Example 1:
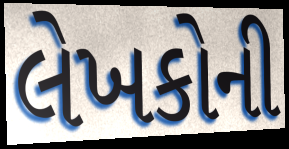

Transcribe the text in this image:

લેખકોની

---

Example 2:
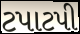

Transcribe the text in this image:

ટપાટપી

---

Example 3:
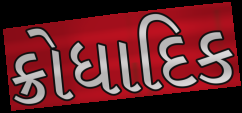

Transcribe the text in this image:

ક્રોધાદિક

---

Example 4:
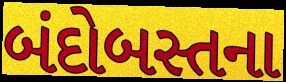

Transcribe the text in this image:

બંદોબસ્તના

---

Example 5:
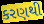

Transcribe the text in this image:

કરણથી